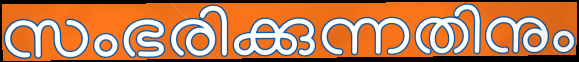
സംഭരിക്കുന്നതിനും